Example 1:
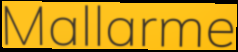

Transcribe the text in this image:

Mallarme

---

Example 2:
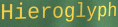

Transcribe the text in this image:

Hieroglyph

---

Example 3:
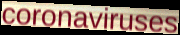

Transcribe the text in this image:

coronaviruses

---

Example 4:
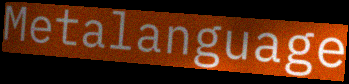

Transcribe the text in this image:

Metalanguage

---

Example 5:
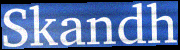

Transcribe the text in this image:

Skandh